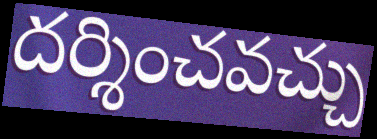
దర్శించవచ్చు